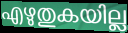
എഴുതുകയില്ല